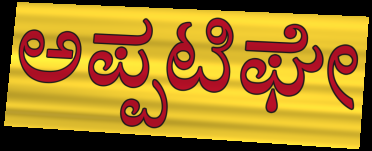
ಅಪ್ಪಟಿಘೇ